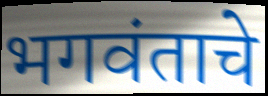
भगवंताचे